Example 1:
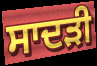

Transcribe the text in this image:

ਸਾਦੜੀ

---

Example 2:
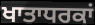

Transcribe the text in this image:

ਖਾਤਾਧਰਕਾਂ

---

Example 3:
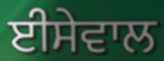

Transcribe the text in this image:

ਈਸੇਵਾਲ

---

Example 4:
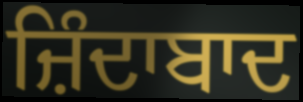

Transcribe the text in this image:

ਜ਼ਿੰਦਾਬਾਦ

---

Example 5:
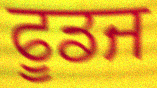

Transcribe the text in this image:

ਫੂਡਜ